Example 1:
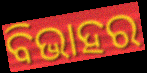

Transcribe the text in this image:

ବିଭାହର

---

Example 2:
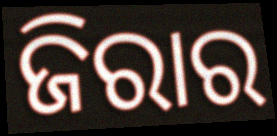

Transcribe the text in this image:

ଜିରାର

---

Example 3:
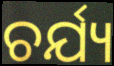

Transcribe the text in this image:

ଚର୍ଯ୍ୟ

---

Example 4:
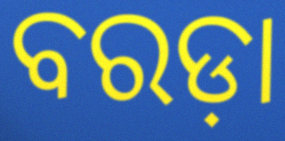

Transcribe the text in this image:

ବରଡ଼ା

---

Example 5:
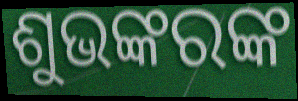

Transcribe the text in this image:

ଶୁଭଙ୍କରଙ୍କ